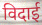
विदाई